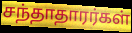
சந்தாதாரர்கள்